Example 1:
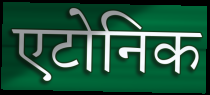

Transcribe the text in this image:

एटोनिक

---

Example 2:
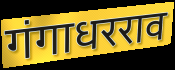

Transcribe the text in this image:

गंगाधरराव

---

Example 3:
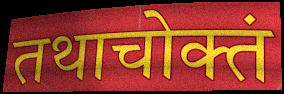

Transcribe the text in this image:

तथाचोक्तं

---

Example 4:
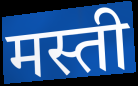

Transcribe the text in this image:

मस्‍ती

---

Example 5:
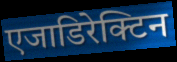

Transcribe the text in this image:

एजाडिरेक्टिन